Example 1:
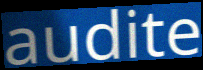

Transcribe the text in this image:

audite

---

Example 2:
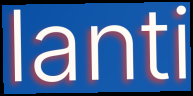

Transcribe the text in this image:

lanti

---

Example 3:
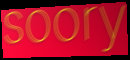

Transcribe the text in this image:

soory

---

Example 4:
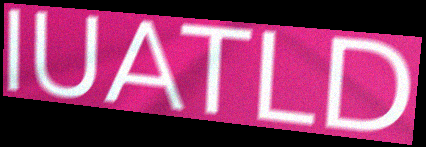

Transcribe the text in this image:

IUATLD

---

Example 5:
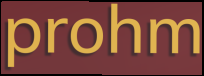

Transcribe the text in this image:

prohm